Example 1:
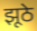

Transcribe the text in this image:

झूठे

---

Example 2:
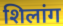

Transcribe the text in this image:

शिलांग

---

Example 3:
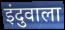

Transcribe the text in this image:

इंदुवाला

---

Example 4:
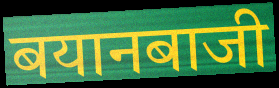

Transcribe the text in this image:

बयानबाजी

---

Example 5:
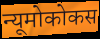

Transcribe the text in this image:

न्यूमोकोकस